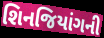
શિનજિયાંગની